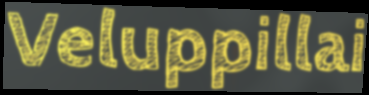
Veluppillai